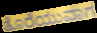
ತೊರೆಯುವಾಗ